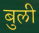
बुली